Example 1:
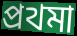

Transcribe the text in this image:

প্রথমা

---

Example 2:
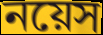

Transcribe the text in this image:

নয়েস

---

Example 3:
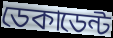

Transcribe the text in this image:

ডেকাডেন্ট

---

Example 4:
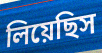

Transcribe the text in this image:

লিয়েছিস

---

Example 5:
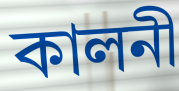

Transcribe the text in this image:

কালনী